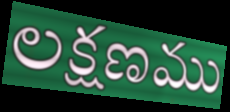
లక్షణము